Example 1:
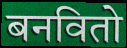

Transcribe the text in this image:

बनवितो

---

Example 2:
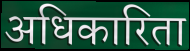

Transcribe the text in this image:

अधिकारिता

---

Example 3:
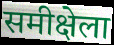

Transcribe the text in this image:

समीक्षेला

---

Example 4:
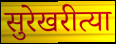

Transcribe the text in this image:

सुरेखरीत्या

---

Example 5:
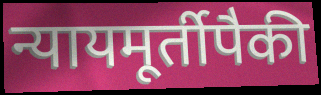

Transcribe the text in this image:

न्यायमूर्तीपैकी